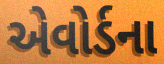
એવોર્ડના